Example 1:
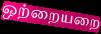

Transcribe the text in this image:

ஒற்றையறை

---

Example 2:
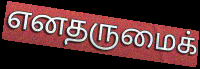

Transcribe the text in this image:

எனதருமைக்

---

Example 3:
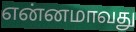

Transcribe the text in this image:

என்னமாவது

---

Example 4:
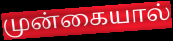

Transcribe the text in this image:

முன்கையால்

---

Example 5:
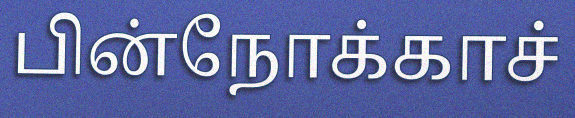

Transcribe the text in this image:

பின்நோக்காச்